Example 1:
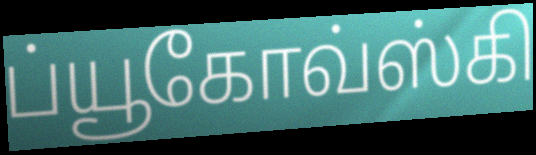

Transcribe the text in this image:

ப்யூகோவ்ஸ்கி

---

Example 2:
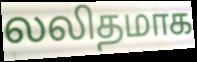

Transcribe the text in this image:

லலிதமாக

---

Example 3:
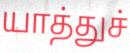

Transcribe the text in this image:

யாத்துச்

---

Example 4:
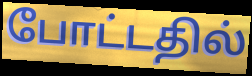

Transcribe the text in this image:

போட்டதில்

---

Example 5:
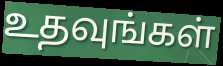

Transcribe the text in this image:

உதவுங்கள்